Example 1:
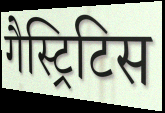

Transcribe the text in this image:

गैस्ट्रिटिस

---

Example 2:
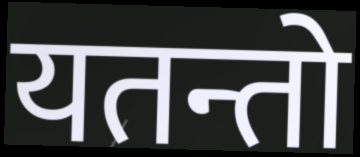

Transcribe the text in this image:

यतन्तो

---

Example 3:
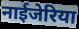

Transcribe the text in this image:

नाईजेरिया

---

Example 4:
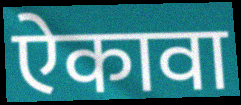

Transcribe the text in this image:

ऐकावा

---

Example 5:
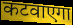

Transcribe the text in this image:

कटवाएगा